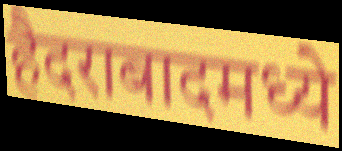
हैदराबादमध्ये